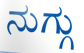
ನುಗ್ಗು